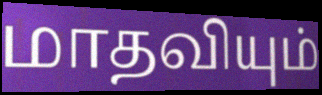
மாதவியும்